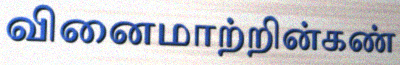
வினைமாற்றின்கண்